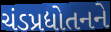
ચંડપ્રદ્યોતનને